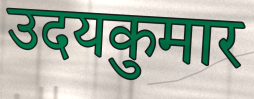
उदयकुमार